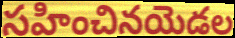
సహించినయెడల